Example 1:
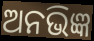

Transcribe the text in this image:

ଅନଭିଜ୍ଞ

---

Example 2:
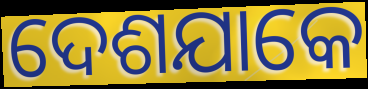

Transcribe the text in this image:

ଦେଶଯାକେ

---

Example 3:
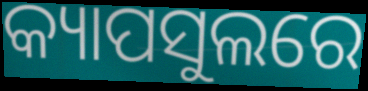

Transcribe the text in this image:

କ୍ୟାପସୁଲରେ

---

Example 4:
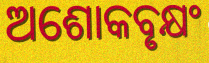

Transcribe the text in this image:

ଅଶୋକବୃକ୍ଷଂ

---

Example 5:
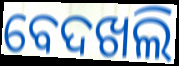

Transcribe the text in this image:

ବେଦଖଲି